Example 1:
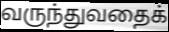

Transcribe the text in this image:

வருந்துவதைக்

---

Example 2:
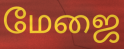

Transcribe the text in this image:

மேஜை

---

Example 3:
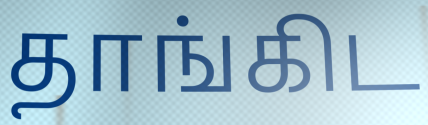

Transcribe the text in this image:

தாங்கிட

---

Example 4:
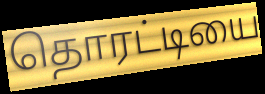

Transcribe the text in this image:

தொரட்டியை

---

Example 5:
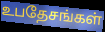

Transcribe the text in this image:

உபதேசங்கள்